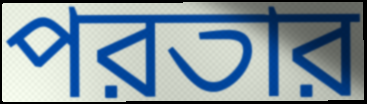
পরতার